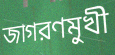
জাগরণমুখী